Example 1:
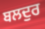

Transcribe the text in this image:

ਬਲਦੁਰ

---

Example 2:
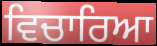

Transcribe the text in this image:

ਵਿਚਾਰਿਆ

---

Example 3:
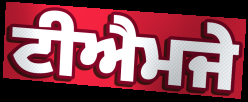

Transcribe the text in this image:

ਟੀਐਮਜੇ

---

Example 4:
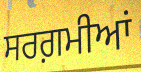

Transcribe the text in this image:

ਸਰਗ਼ਮੀਆਂ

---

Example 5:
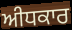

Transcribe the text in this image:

ਅੀਧਕਾਰ